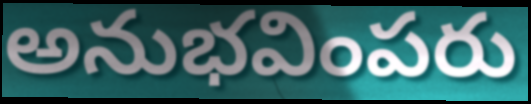
అనుభవింపరు